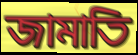
জামাতি